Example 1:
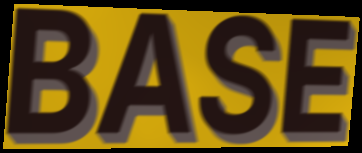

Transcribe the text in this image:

BASE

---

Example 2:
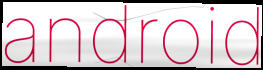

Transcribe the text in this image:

android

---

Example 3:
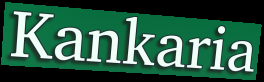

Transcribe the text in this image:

Kankaria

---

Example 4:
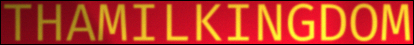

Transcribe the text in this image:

THAMILKINGDOM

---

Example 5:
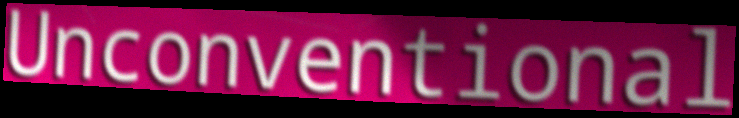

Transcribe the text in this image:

Unconventional